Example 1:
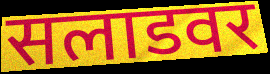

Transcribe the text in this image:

सलाडवर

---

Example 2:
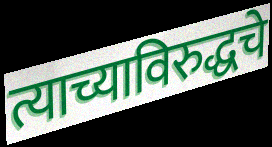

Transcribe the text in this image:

त्याच्याविरुद्धचे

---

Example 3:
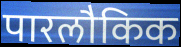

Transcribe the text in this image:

पारलौकिक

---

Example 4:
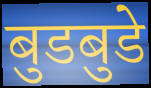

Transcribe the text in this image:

बुडबुडे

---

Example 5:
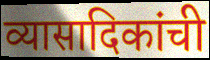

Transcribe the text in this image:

व्यासादिकांची